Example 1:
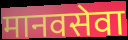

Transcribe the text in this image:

मानवसेवा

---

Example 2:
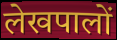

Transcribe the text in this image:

लेखपालों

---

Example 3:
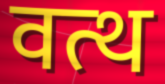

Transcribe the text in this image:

वत्थ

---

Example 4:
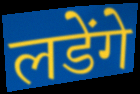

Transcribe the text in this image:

लडेंगे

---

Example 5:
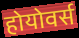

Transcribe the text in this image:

होयोवर्स